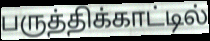
பருத்திக்காட்டில்